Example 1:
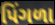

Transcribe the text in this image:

પિંગળા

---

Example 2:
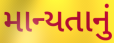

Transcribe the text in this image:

માન્યતાનું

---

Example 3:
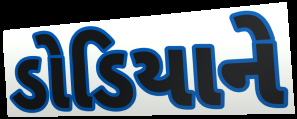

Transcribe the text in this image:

ડોડિયાને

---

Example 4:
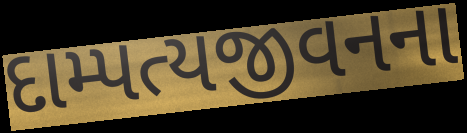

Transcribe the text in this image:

દામ્પત્યજીવનના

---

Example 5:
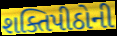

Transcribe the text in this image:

શક્તિપીઠોની